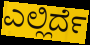
ಎಲ್ಲಿರ್ದೆ